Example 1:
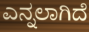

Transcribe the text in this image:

ಎನ್ನಲಾಗಿದೆ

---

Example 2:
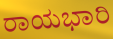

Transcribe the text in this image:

ರಾಯಭಾರಿ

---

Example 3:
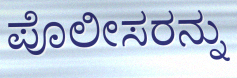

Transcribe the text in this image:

ಪೊಲೀಸರನ್ನು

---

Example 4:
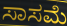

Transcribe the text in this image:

ಸಾಸಮೆ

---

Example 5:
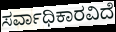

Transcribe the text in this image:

ಸರ್ವಾಧಿಕಾರವಿದೆ